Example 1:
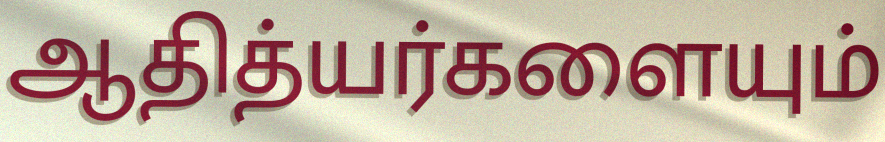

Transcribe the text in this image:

ஆதித்யர்களையும்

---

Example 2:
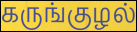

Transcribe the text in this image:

கருங்குழல்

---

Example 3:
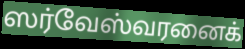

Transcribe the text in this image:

ஸர்வேஸ்வரனைக்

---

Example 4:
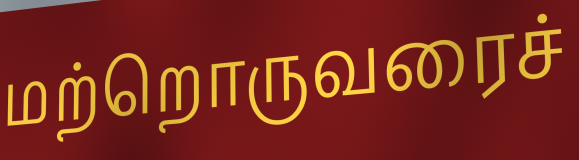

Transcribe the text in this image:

மற்றொருவரைச்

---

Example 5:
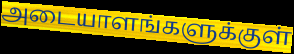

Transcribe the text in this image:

அடையாளங்களுக்குள்